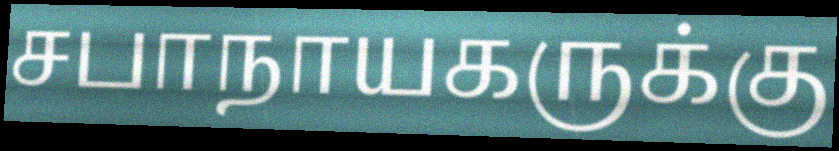
சபாநாயகருக்கு